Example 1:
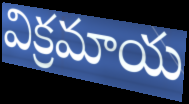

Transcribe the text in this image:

విక్రమాయ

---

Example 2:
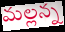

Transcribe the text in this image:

మల్లన్న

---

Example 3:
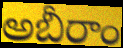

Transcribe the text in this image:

అబీరాం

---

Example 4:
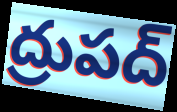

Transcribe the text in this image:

ద్రుపద్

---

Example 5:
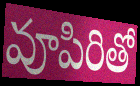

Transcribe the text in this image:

వూపిరితో